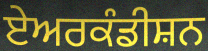
ਏਅਰਕੰਡੀਸ਼ਨ